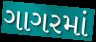
ગાગરમાં